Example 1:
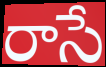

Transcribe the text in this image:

రాసే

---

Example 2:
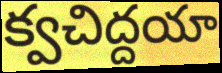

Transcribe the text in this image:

క్వచిద్దయా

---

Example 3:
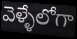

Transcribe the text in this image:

వెళ్ళేలోగా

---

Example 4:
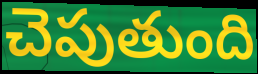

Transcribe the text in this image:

చెపుతుంది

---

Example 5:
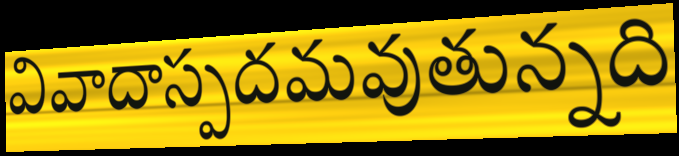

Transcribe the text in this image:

వివాదాస్పదమవుతున్నది